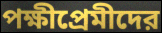
পক্ষীপ্রেমীদের